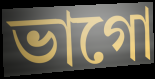
ভাগো